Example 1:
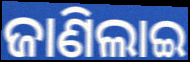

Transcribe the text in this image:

ଜାଣିଲାଇ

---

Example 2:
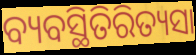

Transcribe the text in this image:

ବ୍ୟବସ୍ଥିତିରିତ୍ୟସା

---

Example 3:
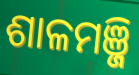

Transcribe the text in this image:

ଶାଳମଞ୍ଜି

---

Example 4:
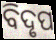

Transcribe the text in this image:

ବିଦୃପ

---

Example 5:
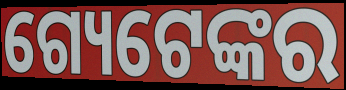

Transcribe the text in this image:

ଗ୍ୟେଟେଙ୍କର